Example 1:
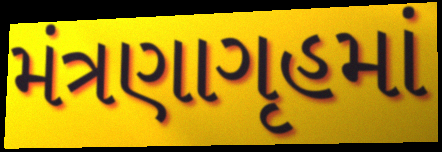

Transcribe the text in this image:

મંત્રણાગૃહમાં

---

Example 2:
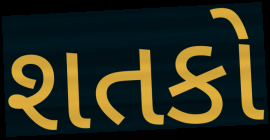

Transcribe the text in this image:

શતકો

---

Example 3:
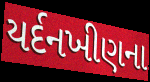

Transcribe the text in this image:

યર્દનખીણના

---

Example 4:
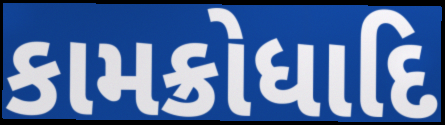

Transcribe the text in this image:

કામક્રોધાદિ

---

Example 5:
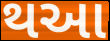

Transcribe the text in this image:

થઆ